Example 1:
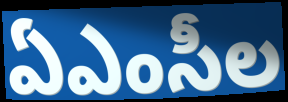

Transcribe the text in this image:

ఏఎంసీల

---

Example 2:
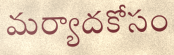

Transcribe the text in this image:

మర్యాదకోసం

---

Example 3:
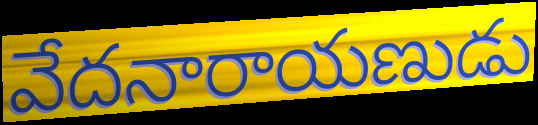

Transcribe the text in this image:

వేదనారాయణుడు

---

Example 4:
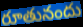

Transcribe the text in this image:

రూతునందు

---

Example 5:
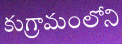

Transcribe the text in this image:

కుగ్రామంలోని